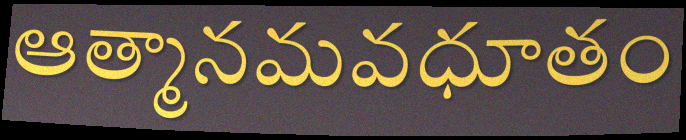
ఆత్మానమవధూతం